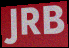
JRB